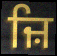
ਜ਼ਿ